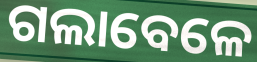
ଗଲାବେଳେ